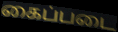
கைப்படை